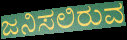
ಜನಿಸಲಿರುವ